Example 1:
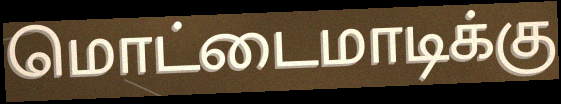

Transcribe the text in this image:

மொட்டைமாடிக்கு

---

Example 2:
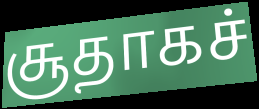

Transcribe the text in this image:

சூதாகச்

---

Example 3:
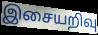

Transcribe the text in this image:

இசையறிவு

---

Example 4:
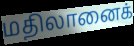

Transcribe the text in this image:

மதிலானைக்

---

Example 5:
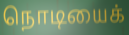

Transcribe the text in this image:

நொடியைக்